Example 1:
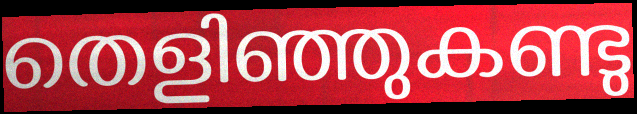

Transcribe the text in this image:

തെളിഞ്ഞുകണ്ടു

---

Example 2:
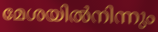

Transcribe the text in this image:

മേശയിൽനിന്നും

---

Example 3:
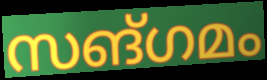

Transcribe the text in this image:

സങ്ഗമം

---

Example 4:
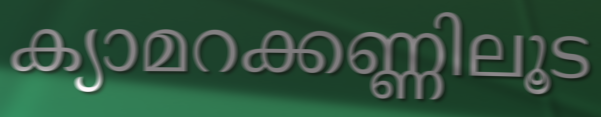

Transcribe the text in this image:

ക്യാമറക്കണ്ണിലൂട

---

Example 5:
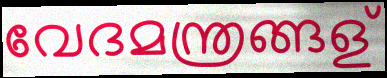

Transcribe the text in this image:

വേദമന്ത്രങ്ങള്